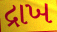
દ્રાખ